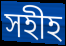
সহীহ